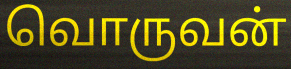
வொருவன்